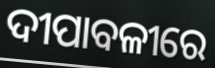
ଦୀପାବଳୀରେ